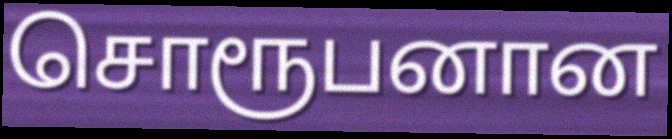
சொரூபனான